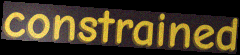
constrained